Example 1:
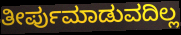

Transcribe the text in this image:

ತೀರ್ಪುಮಾಡುವದಿಲ್ಲ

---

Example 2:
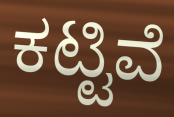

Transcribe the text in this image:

ಕಟ್ಟಿವೆ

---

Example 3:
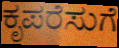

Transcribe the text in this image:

ಕೃಪರೆಸುಗೆ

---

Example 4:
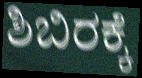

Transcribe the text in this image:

ಶಿಬಿರಕ್ಕೆ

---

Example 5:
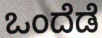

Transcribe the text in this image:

ಒಂದೆಡೆ